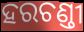
ହରଚଣ୍ଡୀ